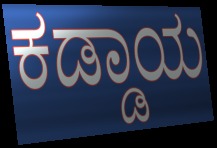
ಕಡ್ಡಾಯ